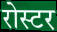
रोस्टर